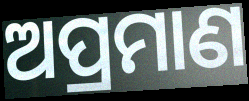
ଅପ୍ରମାଣ